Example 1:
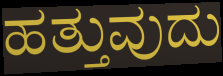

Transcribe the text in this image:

ಹತ್ತುವುದು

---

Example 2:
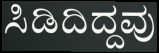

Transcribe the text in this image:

ಸಿಡಿದಿದ್ದವು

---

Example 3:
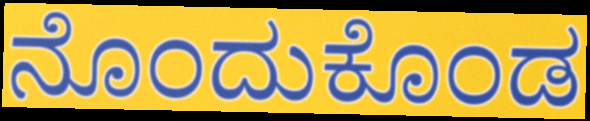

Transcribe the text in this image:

ನೊಂದುಕೊಂಡ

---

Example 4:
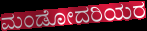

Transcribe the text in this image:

ಮಂಡೋದರಿಯರ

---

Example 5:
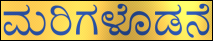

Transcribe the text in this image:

ಮರಿಗಳೊಡನೆ